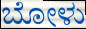
ಬೋಳು